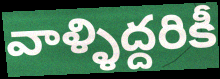
వాళ్ళిద్దరికీ